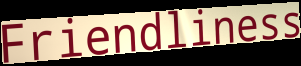
Friendliness